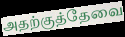
அதற்குத்தேவை